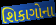
શિકાગોના